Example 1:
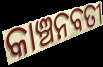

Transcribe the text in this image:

କାଞ୍ଚନବତୀ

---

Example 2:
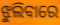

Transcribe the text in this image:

ଝୁଲିବାରେ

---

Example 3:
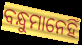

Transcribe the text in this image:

ବନ୍ଧୁମାନେହିଁ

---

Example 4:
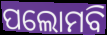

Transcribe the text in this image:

ପଲୋମବି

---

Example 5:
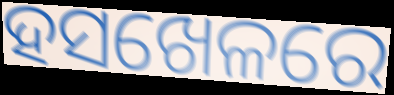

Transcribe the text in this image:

ହସଖେଳରେ